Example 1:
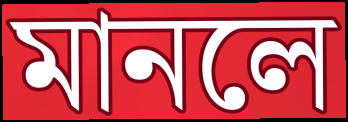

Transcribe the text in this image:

মানলে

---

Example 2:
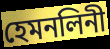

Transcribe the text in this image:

হেমনলিনী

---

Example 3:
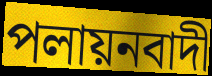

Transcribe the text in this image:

পলায়নবাদী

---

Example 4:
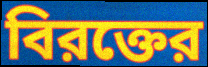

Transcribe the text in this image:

বিরক্তের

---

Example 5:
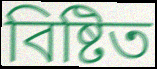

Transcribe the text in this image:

বিষ্টিত